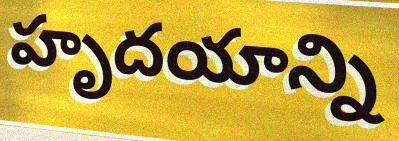
హృదయాన్ని